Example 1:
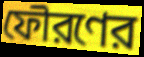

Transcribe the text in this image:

ফৌরণের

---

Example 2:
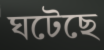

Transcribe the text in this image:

ঘটেছে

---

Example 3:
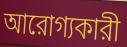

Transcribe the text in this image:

আরোগ্যকারী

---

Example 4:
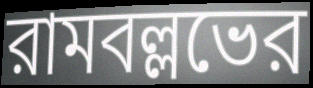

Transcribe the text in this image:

রামবল্লভের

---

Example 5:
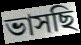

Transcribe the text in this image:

ভাসছি